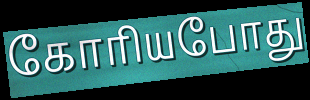
கோரியபோது